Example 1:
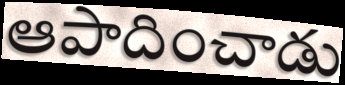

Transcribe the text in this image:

ఆపాదించాడు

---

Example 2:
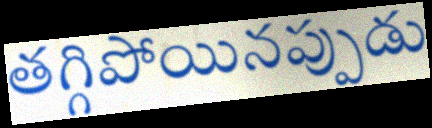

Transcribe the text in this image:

తగ్గిపోయినప్పుడు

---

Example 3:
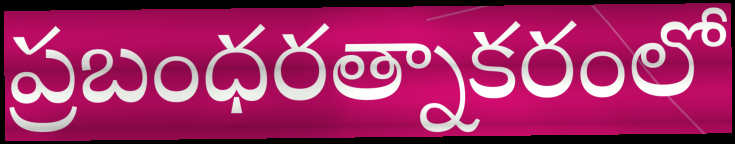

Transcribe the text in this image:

ప్రబంధరత్నాకరంలో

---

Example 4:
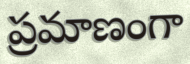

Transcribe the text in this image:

ప్రమాణంగా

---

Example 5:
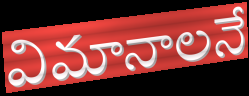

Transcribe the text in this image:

విమానాలనే